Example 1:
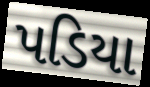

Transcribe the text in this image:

પડિયા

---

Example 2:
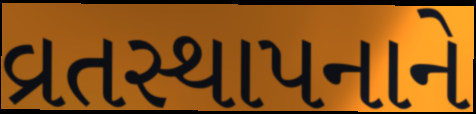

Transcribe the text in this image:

વ્રતસ્થાપનાને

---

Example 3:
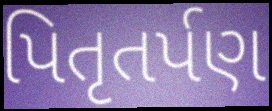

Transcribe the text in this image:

પિતૃતર્પણ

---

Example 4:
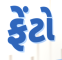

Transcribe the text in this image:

ફેંટો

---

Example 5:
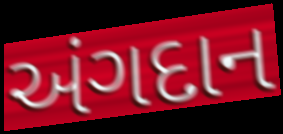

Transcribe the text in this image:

અંગદાન